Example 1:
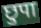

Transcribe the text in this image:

छुपा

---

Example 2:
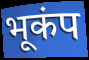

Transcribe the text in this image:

भूकंप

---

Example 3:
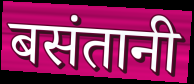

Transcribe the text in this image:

बसंतानी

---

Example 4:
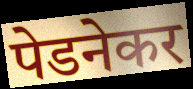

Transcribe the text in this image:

पेडनेकर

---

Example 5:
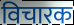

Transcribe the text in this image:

विचारक